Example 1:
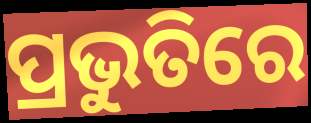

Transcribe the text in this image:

ପ୍ରଭୁତିରେ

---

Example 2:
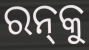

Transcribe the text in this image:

ରନ୍‌କୁ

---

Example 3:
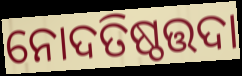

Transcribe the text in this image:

ନୋଦତିଷ୍ଠତ୍ତଦା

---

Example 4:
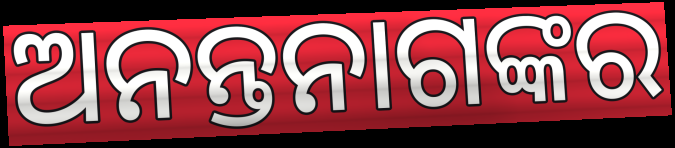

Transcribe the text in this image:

ଅନନ୍ତନାଗଙ୍କର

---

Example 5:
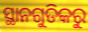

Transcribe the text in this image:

ସ୍ଥାନଗୁଡିକରୁ